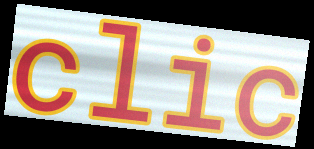
clic